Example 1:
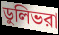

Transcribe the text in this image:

ডুলিভরা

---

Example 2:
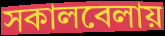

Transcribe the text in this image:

সকালবেলায়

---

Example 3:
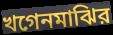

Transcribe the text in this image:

খগেনমাঝির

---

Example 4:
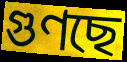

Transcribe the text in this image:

গুণছে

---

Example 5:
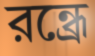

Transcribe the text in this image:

রন্ধ্রে